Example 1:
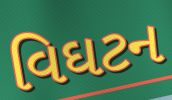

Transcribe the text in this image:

વિઘટન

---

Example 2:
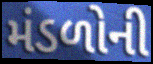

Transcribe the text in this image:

મંડળોની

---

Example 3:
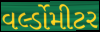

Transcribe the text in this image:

વર્લ્ડોમીટર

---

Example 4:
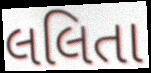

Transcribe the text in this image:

લલિતા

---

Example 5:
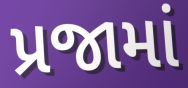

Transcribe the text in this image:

પ્રજામાં